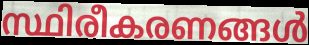
സ്ഥിരീകരണങ്ങൾ